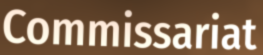
Commissariat